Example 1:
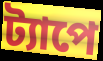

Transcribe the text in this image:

ট্যাপে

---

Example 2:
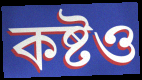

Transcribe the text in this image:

কষ্টও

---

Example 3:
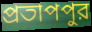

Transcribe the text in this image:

প্রতাপপুর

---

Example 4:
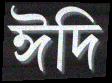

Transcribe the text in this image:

ঈদি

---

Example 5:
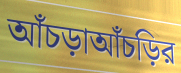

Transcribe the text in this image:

আঁচড়াআঁচড়ির